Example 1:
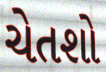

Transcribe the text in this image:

ચેતશો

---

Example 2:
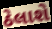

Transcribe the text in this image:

ઠેલાશે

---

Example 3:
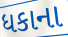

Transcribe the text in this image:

ધકાના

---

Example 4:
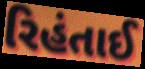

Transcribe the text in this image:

રિહંતાઈ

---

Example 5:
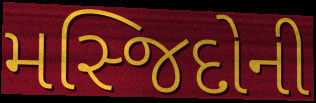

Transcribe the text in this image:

મસ્જિદોની